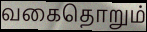
வகைதொறும்